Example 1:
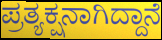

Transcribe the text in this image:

ಪ್ರತ್ಯಕ್ಷನಾಗಿದ್ದಾನೆ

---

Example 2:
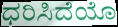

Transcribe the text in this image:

ಧರಿಸಿದೆಯೊ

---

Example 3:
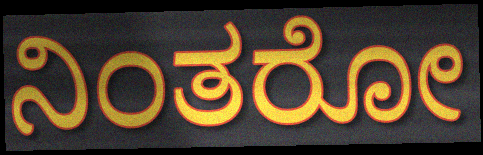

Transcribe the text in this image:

ನಿಂತರೋ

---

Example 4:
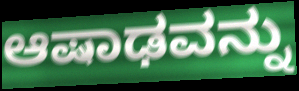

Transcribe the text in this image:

ಆಷಾಢವನ್ನು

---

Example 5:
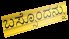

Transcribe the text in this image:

ಬಸ್ಸೊಂದನ್ನು